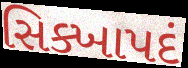
સિક્ખાપદં